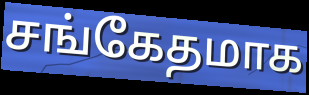
சங்கேதமாக